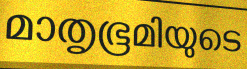
മാതൃഭൂമിയുടെ